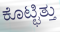
ಕೊಟ್ಟಿತ್ತು